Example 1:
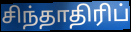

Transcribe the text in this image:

சிந்தாதிரிப்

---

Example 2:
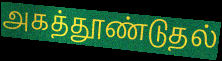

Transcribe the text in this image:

அகத்தூண்டுதல்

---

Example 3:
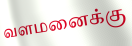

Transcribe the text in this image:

வளமனைக்கு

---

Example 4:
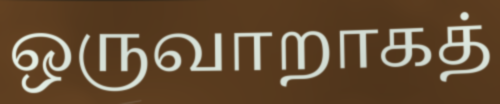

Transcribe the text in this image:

ஒருவாறாகத்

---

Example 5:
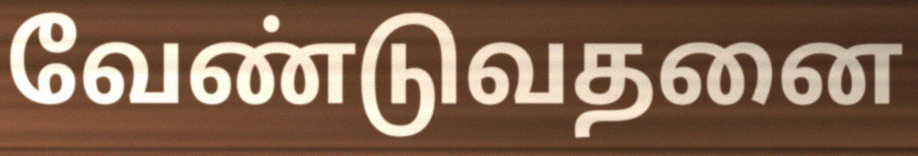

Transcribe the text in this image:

வேண்டுவதனை